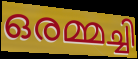
ഒരമ്മച്ചി